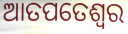
ଆତପତେଶ୍ୱର